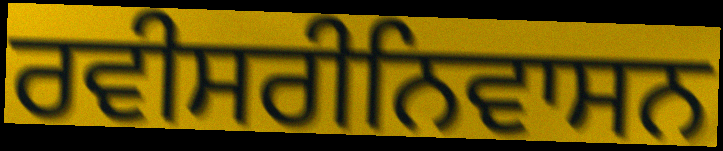
ਰਵੀਸਰੀਨਿਵਾਸਨ